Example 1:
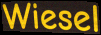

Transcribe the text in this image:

Wiesel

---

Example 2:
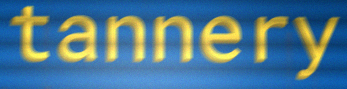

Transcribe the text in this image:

tannery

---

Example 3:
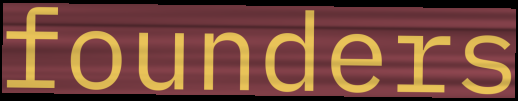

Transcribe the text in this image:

founders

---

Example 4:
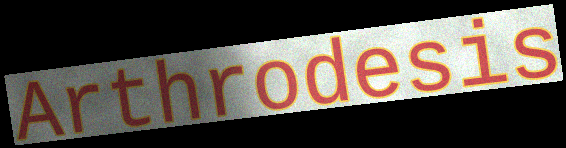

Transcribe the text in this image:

Arthrodesis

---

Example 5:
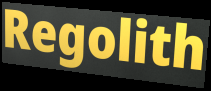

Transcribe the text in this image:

Regolith